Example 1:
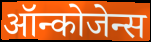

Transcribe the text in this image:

ऑन्कोजेन्स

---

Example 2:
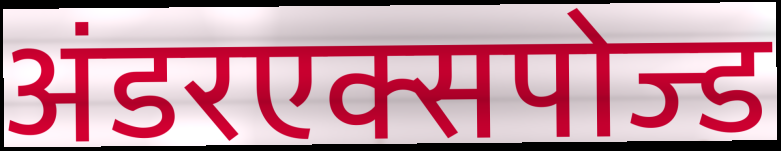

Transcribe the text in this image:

अंडरएक्सपोज्ड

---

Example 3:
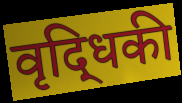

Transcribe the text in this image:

वृद्धिकी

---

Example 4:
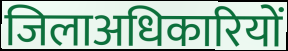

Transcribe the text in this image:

जिलाअधिकारियों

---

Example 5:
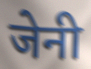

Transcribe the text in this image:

जेनी